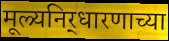
मूल्यनिर्धारणाच्या